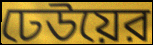
ঢেউয়ের